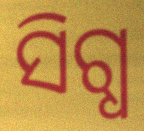
ସିଗ୍ଧ